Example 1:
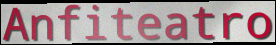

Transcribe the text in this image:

Anfiteatro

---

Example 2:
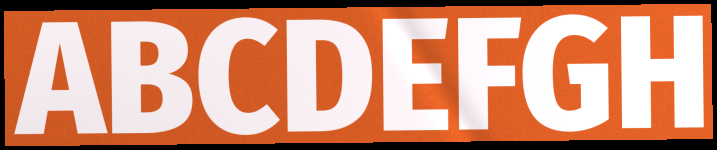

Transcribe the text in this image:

ABCDEFGH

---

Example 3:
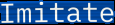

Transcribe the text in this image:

Imitate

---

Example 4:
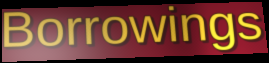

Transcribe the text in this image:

Borrowings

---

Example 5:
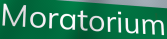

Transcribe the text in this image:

Moratorium